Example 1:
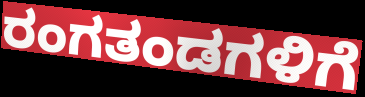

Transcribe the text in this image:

ರಂಗತಂಡಗಳಿಗೆ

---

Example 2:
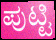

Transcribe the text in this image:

ಪುಟ್ಟಿ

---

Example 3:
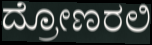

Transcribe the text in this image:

ದ್ರೋಣರಲಿ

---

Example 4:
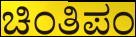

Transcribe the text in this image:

ಚಿಂತಿಪಂ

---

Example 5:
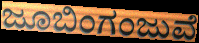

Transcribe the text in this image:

ಜೂಬಿಂಗಂಜುವೆ